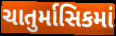
ચાતુર્માસિકમાં